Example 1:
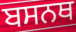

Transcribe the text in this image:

ਬਸਨਥ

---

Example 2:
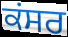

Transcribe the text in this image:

ਕਂਸਰ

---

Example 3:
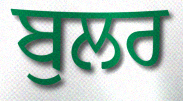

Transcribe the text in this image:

ਬੁਲਰ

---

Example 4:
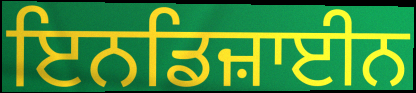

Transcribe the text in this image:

ਇਨਡਿਜ਼ਾਈਨ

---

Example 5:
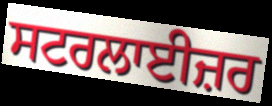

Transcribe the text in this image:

ਸਟਰਲਾਈਜ਼ਰ